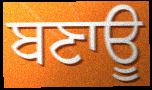
ਬਣਾਊ